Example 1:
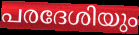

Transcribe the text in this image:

പരദേശിയും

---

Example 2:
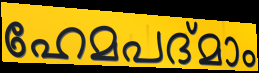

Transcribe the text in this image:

ഹേമപദ്മാം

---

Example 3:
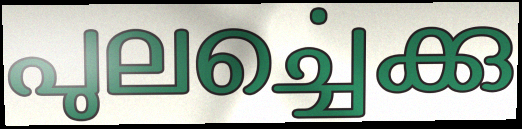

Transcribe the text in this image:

പുലൎച്ചെക്കു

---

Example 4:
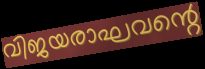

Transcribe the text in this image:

വിജയരാഘവന്റെ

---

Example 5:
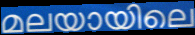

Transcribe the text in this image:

മലയായിലെ